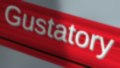
Gustatory